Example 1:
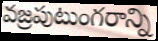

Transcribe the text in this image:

వజ్రపుటుంగరాన్ని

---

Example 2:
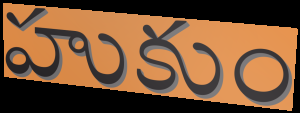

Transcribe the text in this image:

హుకుం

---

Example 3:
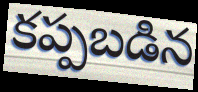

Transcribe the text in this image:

కప్పబడిన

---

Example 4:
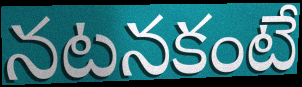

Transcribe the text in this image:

నటనకంటే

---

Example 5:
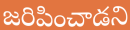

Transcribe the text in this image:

జరిపించాడని